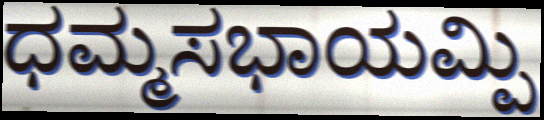
ಧಮ್ಮಸಭಾಯಮ್ಪಿ